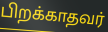
பிறக்காதவர்